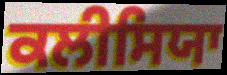
ਕਲੀਸਿਯਾ